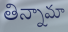
తిన్నామా